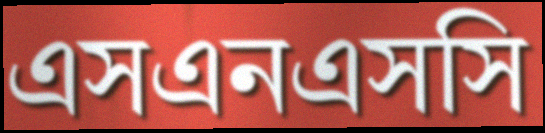
এসএনএসসি